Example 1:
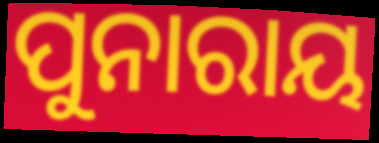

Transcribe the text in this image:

ପୁନାରାୟ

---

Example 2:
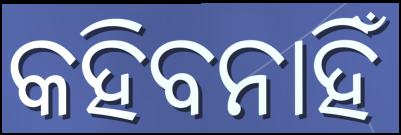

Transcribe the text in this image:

କହିବନାହିଁ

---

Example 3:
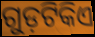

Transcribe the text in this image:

ଗୁଡ଼ଟିକିଏ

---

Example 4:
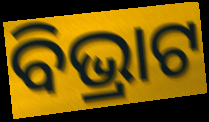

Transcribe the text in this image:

ବିଭ୍ରାଟ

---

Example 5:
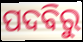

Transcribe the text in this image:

ପଦବିରୁ